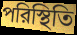
পরিস্থিতি